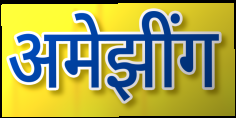
अमेझींग